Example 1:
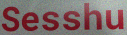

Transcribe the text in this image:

Sesshu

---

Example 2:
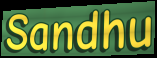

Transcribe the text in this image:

Sandhu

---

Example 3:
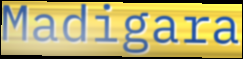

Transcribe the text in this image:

Madigara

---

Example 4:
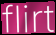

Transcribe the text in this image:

flirt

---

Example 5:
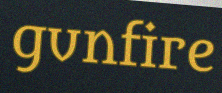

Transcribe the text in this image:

gunfire